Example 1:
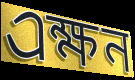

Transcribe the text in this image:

এক্ষন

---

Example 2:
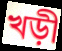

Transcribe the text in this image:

খড়ী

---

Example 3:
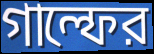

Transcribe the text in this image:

গাল্ফের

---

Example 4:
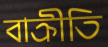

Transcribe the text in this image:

বাক্রীতি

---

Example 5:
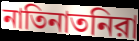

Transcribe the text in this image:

নাতিনাতনিরা